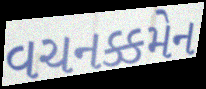
વચનક્કમેન